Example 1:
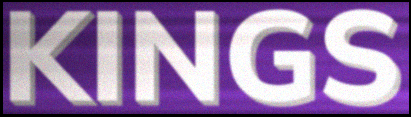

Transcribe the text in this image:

KINGS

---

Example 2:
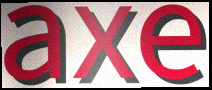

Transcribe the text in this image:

axe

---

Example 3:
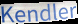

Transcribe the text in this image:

Kendler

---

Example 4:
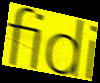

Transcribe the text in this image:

fidi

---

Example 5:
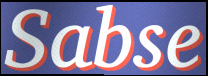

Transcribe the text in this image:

Sabse